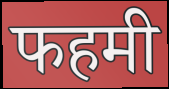
फहमी